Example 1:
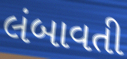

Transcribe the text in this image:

લંબાવતી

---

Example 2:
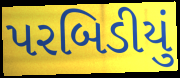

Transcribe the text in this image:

પરબિડીયું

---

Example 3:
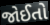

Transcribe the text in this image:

જોઈતો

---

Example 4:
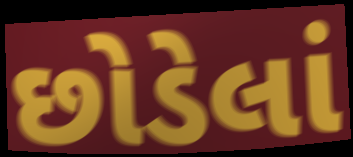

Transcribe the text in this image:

છોડેલાં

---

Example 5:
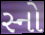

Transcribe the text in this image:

સ્નો